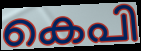
കെപി